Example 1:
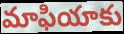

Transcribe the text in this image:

మాఫియాకు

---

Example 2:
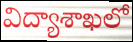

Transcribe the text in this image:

విద్యాశాఖలో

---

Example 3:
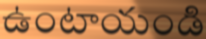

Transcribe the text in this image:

ఉంటాయండి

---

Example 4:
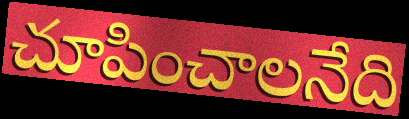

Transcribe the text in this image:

చూపించాలనేది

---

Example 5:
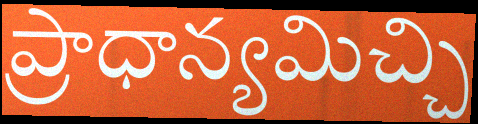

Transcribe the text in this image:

ప్రాధాన్యమిచ్చి